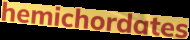
hemichordates